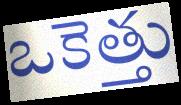
ఒకెత్తు